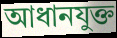
আধানযুক্ত